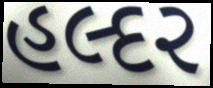
હલ્દર